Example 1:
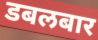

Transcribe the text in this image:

डबलबार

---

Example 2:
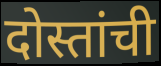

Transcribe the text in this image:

दोस्तांची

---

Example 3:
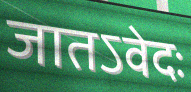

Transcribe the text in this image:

जातऽवेदः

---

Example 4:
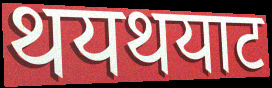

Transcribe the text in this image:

थयथयाट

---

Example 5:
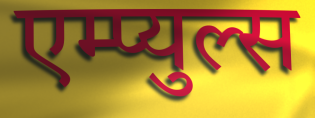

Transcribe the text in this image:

एम्प्युल्स